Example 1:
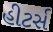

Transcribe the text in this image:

હીટર્સ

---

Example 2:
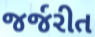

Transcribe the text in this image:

જર્જરીત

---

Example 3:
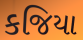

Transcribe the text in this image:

કજિયા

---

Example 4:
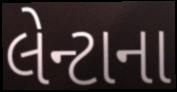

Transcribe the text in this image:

લેન્ટાના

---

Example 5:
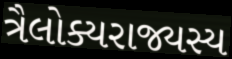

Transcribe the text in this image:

ત્રૈલોક્યરાજ્યસ્ય